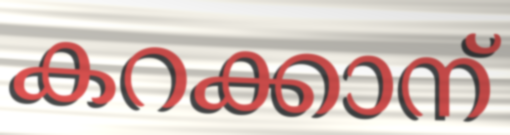
കറക്കാന്